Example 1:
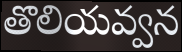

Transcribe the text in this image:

తొలియవ్వన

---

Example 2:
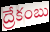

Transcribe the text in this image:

ద్రేకంబు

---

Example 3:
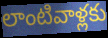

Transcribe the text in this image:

లాంటివాళ్లకు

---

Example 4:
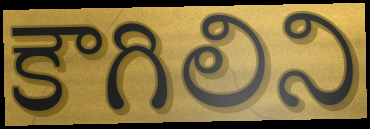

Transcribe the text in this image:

కౌగిలిని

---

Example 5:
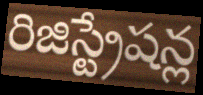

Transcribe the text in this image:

రిజిస్ట్రేషన్ల